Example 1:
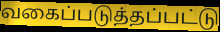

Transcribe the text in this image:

வகைப்படுத்தப்பட்டு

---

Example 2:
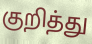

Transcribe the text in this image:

குறித்து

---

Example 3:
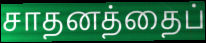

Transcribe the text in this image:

சாதனத்தைப்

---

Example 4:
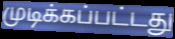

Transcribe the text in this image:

முடிக்கப்பட்டது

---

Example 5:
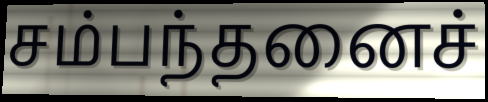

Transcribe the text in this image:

சம்பந்தனைச்